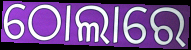
ଠୋଲାରେ